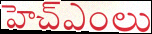
హెచ్ఎంలు